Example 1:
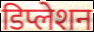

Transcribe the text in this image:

डिप्लेशन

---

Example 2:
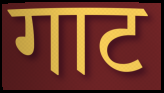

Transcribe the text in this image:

गाट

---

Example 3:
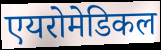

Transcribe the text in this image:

एयरोमेडिकल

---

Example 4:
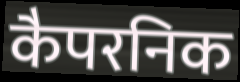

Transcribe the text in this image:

कैपरनिक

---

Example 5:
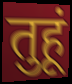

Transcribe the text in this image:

तुहूं